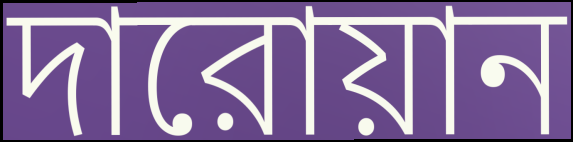
দারোয়ান